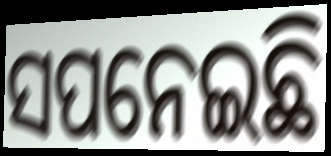
ସପନେଇଛି